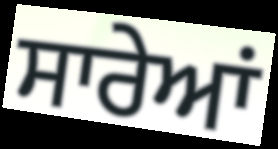
ਸਾਰੇਆਂ